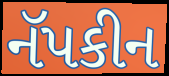
નૅપકીન